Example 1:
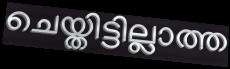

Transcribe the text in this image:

ചെയ്തിട്ടില്ലാത്ത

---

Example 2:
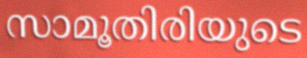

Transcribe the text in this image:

സാമൂതിരിയുടെ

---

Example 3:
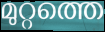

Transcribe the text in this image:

മുറ്റത്തെ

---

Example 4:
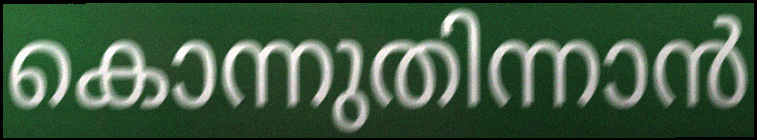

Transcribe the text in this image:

കൊന്നുതിന്നാൻ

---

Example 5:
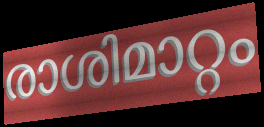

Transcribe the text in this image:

രാശിമാറ്റം